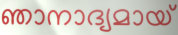
ഞാനാദ്യമായ്